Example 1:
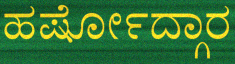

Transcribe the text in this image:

ಹರ್ಷೋದ್ಗಾರ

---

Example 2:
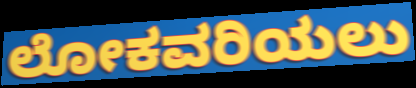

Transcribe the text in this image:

ಲೋಕವರಿಯಲು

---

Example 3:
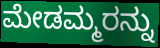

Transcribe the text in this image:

ಮೇಡಮ್ಮರನ್ನು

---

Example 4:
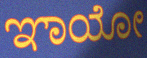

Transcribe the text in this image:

ಞಾಯೋ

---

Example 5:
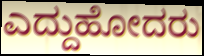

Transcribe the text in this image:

ಎದ್ದುಹೋದರು